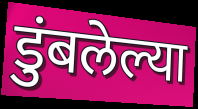
डुंबलेल्या